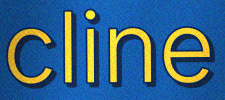
cline